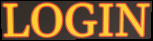
LOGIN